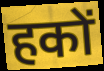
हकों